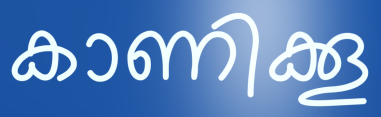
കാണിക്കൂ